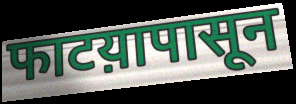
फाटय़ापासून